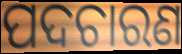
ପଦଚାରଣ